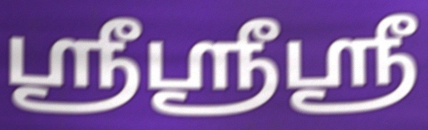
ஸ்ரீஸ்ரீஸ்ரீ